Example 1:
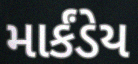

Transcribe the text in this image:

માર્કંડેય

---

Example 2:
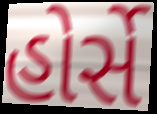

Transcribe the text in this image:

હોર્સે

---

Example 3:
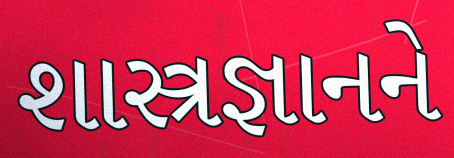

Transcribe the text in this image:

શાસ્ત્રજ્ઞાનને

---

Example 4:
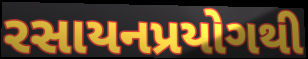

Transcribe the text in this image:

રસાયનપ્રયોગથી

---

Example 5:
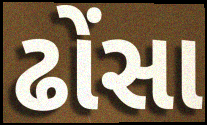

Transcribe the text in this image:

ઢોંસા